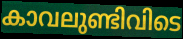
കാവലുണ്ടിവിടെ